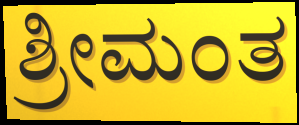
ಶ್ರೀಮಂತ